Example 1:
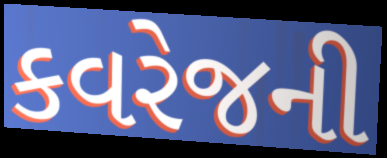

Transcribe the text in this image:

કવરેજની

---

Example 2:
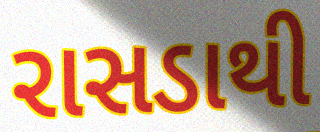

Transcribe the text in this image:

રાસડાથી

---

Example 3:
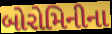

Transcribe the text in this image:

બોરોમિનીના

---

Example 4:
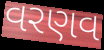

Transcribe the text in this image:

વરણવ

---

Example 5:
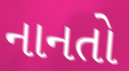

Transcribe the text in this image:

નાનતો